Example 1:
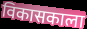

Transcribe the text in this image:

विकासकाला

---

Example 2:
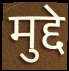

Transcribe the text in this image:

मुद्दे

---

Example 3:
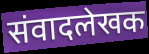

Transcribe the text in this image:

संवादलेखक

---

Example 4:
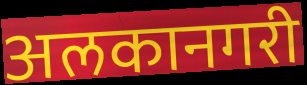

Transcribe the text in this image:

अलकानगरी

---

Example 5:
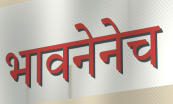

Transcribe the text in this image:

भावनेनेच